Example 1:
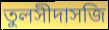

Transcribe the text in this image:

তুলসীদাসজি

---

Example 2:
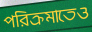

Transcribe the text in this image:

পরিক্রমাতেও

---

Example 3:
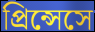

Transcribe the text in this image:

প্রিন্সেসে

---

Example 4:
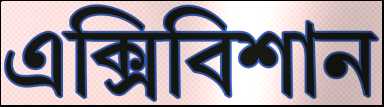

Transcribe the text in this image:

এক্সিবিশান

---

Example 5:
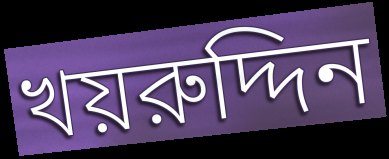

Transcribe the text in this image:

খয়রুদ্দিন